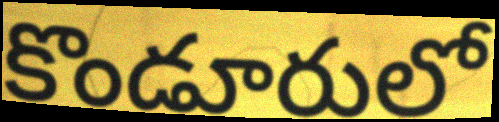
కొండూరులో